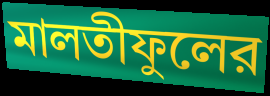
মালতীফুলের